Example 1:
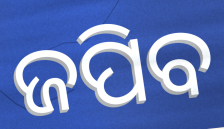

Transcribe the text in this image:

ଜପିବ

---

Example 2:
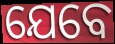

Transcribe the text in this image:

ଯେବେ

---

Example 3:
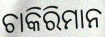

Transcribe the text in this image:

ଚାକିରିମାନ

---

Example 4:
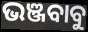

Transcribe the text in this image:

ଭଞ୍ଜବାବୁ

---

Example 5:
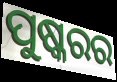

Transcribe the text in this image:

ପୁଷ୍କରର